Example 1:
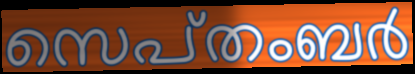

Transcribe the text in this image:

സെപ്‌തംബർ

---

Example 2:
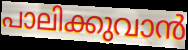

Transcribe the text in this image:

പാലിക്കുവാൻ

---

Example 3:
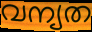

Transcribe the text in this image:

വന്യത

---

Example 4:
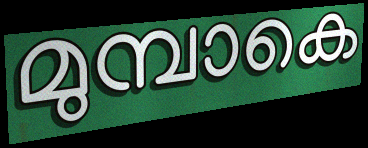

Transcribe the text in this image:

മുമ്പാകെ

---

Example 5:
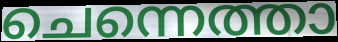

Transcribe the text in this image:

ചെന്നെത്താ